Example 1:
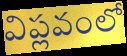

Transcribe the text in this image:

విప్లవంలో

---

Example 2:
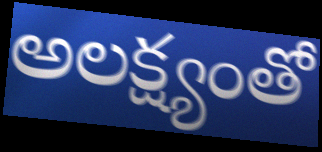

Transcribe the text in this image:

అలక్ష్యంతో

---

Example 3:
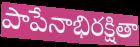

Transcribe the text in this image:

పాపేనాభిరక్షితా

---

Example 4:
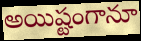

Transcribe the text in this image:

అయిష్టంగానూ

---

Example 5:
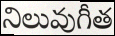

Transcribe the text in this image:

నిలువుగీత